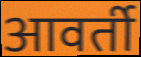
आवर्ती